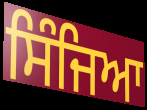
ਸਿੰਜਿਆ